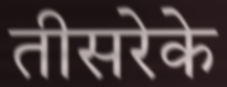
तीसरेके